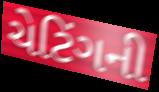
ચેટિંગની